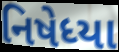
નિષેધ્યા